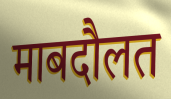
माबदौलत